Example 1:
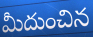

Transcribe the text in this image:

మీదుంచిన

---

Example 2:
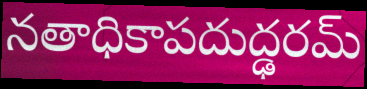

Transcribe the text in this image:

నతాధికాపదుద్ఢరమ్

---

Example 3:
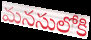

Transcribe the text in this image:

మనసులోకి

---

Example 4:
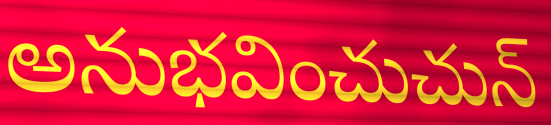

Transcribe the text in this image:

అనుభవించుచున్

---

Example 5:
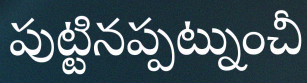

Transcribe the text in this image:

పుట్టినప్పట్నుంచీ